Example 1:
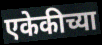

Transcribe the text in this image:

एकेकीच्या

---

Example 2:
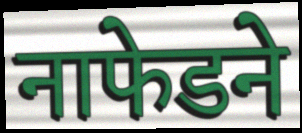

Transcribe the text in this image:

नाफेडने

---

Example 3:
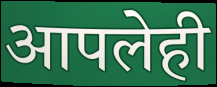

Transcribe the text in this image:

आपलेही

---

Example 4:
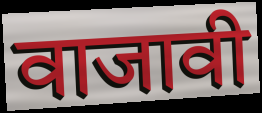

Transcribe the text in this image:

वाजावी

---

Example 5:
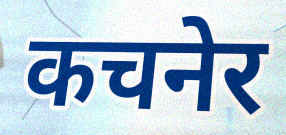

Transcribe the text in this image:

कचनेर